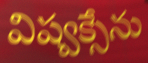
విష్వక్సేను